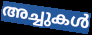
അച്ചുകൾ